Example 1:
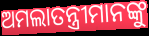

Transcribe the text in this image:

ଅମଲାତନ୍ତ୍ରୀମାନଙ୍କୁ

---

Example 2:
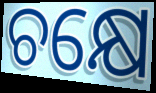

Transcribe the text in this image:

ଚକ୍ଷେ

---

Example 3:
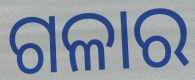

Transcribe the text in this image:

ଗଳାର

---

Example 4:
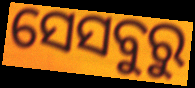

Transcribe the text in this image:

ସେସବୁରୁ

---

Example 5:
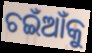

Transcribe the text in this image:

ଚଇଁଆଁକୁ